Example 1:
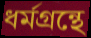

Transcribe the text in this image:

ধর্মগ্রন্থে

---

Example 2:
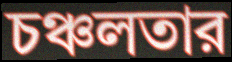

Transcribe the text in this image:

চঞ্চলতার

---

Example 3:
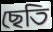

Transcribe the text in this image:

ছেতি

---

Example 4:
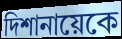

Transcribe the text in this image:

দিশানায়েকে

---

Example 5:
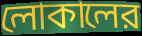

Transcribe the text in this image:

লোকালের